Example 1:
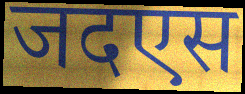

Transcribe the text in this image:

जदएस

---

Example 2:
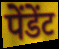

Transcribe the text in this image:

पेंडेंट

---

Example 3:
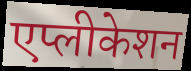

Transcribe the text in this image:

एप्लीकेशन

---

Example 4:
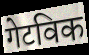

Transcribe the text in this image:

गेटविक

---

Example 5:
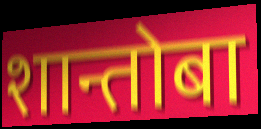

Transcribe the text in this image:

शान्तोबा